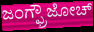
ಜಂಗ್ಫ್ರೌಜೋಚ್